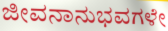
ಜೀವನಾನುಭವಗಳೇ